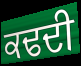
ਕਢਦੀ